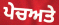
ਪੇਚਅਤੇ